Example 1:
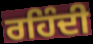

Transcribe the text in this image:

ਰਹਿੰਦੀ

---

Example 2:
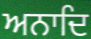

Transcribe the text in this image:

ਅਨਾਦਿ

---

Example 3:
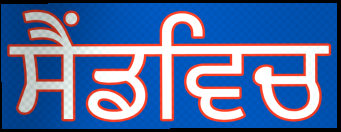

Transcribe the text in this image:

ਸੈਂਡਵਿਚ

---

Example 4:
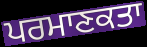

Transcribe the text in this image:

ਪਰਮਾਣਕਤਾ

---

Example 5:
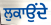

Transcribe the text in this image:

ਲੁਕਾਉਂਦੇ